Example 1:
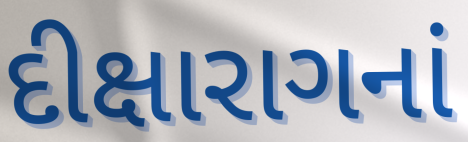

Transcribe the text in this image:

દીક્ષારાગનાં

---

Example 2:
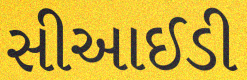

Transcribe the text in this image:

સીઆઈડી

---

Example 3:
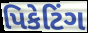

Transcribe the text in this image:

પિકેટિંગ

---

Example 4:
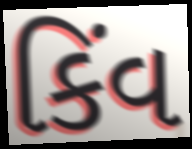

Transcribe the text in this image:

કિંવ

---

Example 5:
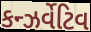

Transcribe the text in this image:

કન્ઝર્વેટિવ